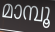
മാമ്പൂ